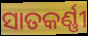
ସାତକର୍ଣ୍ଣୀ